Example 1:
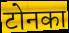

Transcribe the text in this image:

टोनका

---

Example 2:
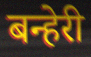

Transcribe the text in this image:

बन्हेरी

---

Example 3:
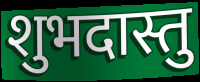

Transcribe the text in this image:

शुभदास्तु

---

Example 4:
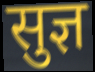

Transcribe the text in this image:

सुज्ञ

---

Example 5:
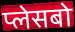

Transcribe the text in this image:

प्लेसबो